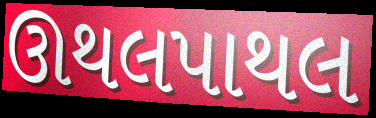
ઊથલપાથલ